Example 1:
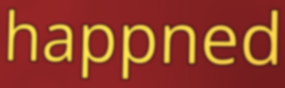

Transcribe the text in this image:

happned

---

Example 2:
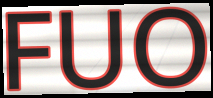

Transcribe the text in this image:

FUO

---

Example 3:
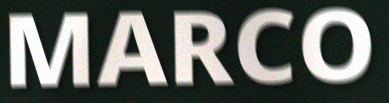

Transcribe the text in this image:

MARCO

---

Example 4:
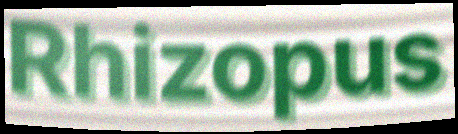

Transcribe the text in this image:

Rhizopus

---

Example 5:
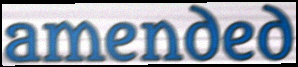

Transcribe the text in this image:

amended